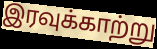
இரவுக்காற்று